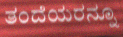
ತಂದೆಯರನ್ನೂ